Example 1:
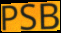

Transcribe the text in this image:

PSB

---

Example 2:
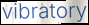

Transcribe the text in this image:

vibratory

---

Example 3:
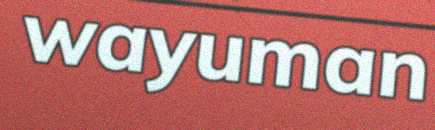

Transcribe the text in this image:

wayuman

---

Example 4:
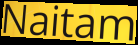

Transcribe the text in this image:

Naitam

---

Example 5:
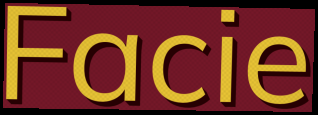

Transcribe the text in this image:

Facie